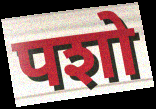
पशो